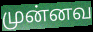
முன்னவ